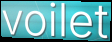
voilet